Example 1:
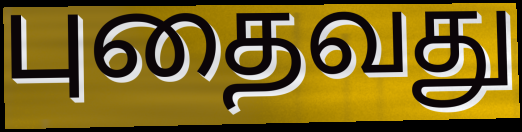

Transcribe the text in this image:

புதைவது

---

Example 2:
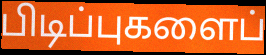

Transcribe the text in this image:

பிடிப்புகளைப்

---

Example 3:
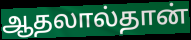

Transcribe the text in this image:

ஆதலால்தான்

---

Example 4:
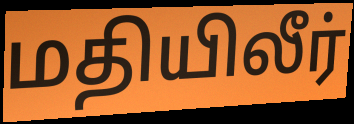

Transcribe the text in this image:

மதியிலீர்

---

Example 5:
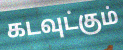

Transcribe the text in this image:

கடவுட்கும்